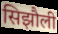
सिझौली